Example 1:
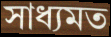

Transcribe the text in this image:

সাধ্যমত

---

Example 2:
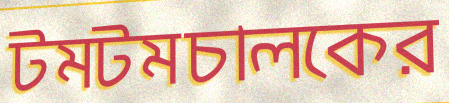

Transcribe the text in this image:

টমটমচালকের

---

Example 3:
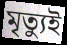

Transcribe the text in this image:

মৃত্যুই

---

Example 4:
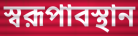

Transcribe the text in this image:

স্বরূপাবস্থান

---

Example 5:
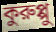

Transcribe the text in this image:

কুরুপ্পু